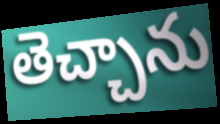
తెచ్చాను